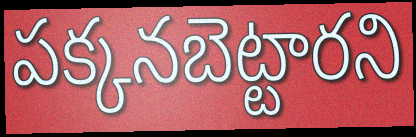
పక్కనబెట్టారని